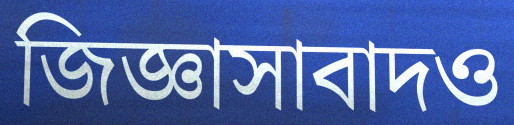
জিজ্ঞাসাবাদও